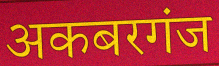
अकबरगंज